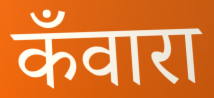
कँवारा